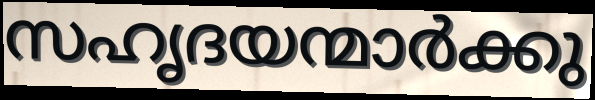
സഹൃദയന്മാർക്കു